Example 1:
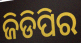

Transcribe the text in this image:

ଜିଡିପିର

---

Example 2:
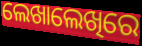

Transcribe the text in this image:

ଲେଖାଲେଖିରେ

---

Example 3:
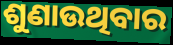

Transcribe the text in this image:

ଶୁଣାଉଥିବାର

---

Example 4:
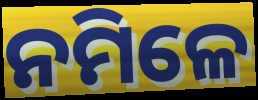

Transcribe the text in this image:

ନମିଳେ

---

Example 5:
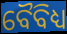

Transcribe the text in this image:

ବୈବିଧ୍ୟ